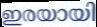
ഇരയായി